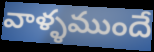
వాళ్ళముందే